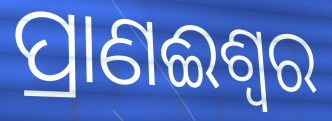
ପ୍ରାଣଈଶ୍ୱର